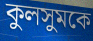
কুলসুমকে